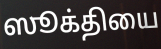
ஸூக்தியை